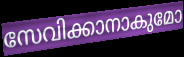
സേവിക്കാനാകുമോ